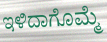
ಇಳಿದಾಗೊಮ್ಮೆ